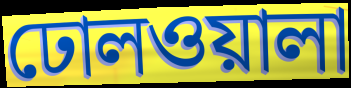
ঢোলওয়ালা